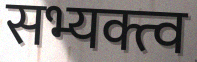
सभ्यक्त्व